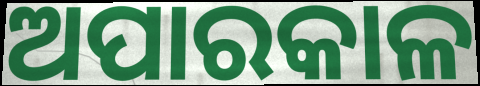
ଅପାରକାଳ